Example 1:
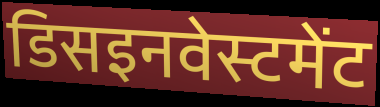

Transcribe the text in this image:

डिसइनवेस्टमेंट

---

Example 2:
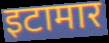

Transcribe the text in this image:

इटामार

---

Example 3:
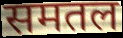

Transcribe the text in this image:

समतल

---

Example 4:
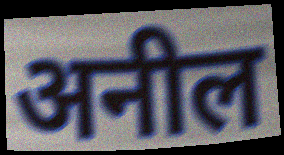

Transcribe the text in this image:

अनील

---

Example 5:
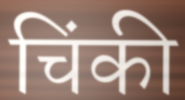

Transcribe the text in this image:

चिंकी